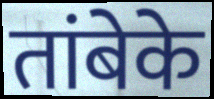
तांबेके